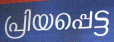
പ്രിയപ്പെട്ട